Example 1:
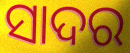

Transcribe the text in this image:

ସାଦର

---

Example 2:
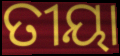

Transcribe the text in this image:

ତୀୟା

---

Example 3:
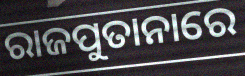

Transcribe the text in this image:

ରାଜପୁତାନାରେ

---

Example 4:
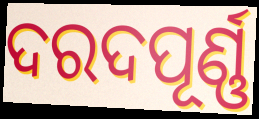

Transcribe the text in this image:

ଦରଦପୂର୍ଣ୍ଣ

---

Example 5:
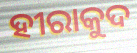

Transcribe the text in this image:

ହୀରାକୁଦ